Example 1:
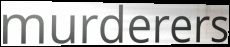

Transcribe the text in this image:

murderers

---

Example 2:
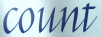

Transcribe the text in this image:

count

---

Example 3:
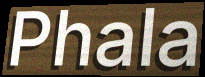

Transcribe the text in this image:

Phala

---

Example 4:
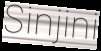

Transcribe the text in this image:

Sinjini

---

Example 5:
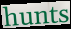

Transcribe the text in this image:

hunts